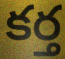
కర్త